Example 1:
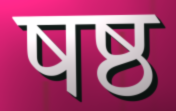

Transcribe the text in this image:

षष्ठ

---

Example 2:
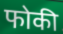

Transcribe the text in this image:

फोकी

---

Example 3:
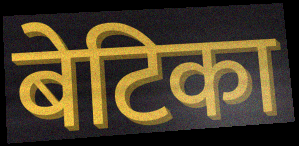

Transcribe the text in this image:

बेटिका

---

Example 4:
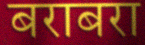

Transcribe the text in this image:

बराबरा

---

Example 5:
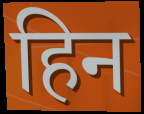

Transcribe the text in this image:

हिन